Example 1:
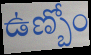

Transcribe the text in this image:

ఉణ్బోం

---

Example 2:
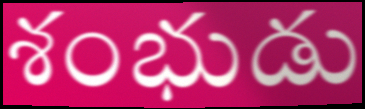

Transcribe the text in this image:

శంభుడు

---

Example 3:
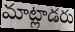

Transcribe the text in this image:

మాట్లాడరు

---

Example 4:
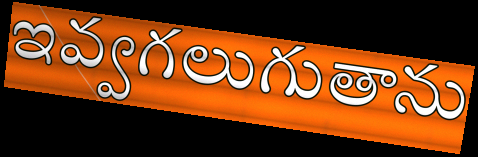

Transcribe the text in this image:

ఇవ్వగలుగుతాను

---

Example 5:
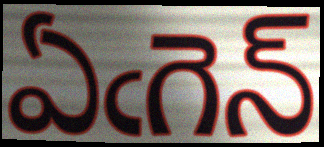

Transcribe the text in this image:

ఏఁగెన్